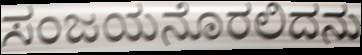
ಸಂಜಯನೊರಲಿದನು